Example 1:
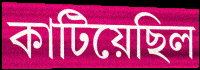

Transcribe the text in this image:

কাটিয়েছিল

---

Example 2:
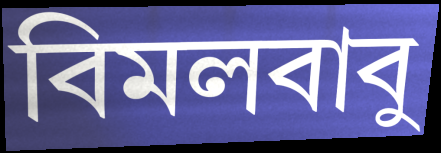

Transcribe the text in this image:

বিমলবাবু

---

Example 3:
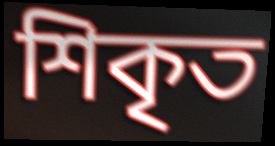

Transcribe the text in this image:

শিকৃত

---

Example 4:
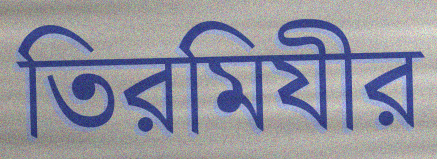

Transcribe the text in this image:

তিরমিযীর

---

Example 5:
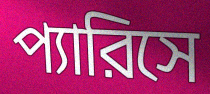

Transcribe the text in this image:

প্যারিসে